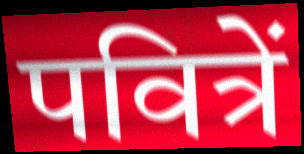
पवित्रें